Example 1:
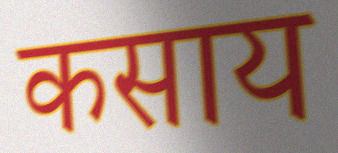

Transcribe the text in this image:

कसाय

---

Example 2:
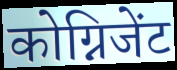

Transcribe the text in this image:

कोग्निजेंट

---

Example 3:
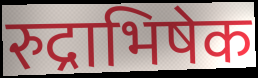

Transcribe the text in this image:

रुद्राभिषेक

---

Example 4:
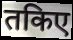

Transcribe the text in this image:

तकिए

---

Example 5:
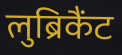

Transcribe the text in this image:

लुब्रिकैंट